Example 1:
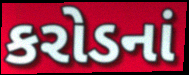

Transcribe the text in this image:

કરોડનાં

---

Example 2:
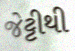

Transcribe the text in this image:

જેટ્ટીથી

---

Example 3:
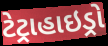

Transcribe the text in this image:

ટેટ્રાહાઇડ્રો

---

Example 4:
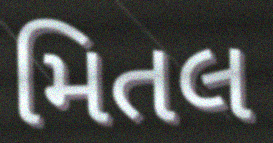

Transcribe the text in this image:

મિતલ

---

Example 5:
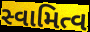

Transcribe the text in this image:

સ્વામિત્વ